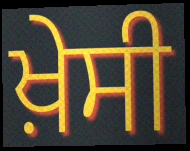
ਖ਼ੇਸੀ